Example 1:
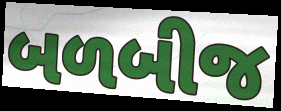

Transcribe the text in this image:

બળબીજ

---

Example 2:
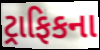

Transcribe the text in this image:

ટ્રાફિકના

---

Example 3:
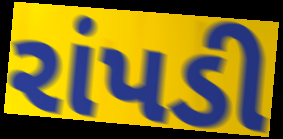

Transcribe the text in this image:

રાંપડી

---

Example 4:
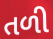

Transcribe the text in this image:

તળી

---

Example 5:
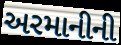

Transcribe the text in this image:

અરમાનીની